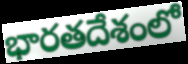
భారతదేశంలో